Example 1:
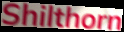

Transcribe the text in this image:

Shilthorn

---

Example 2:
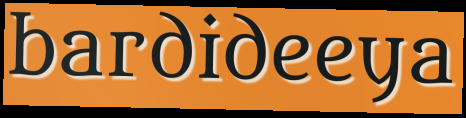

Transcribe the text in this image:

bardideeya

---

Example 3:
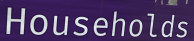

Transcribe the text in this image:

Households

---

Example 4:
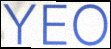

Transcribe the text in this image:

YEO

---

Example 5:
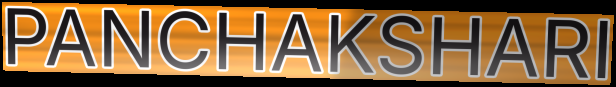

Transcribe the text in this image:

PANCHAKSHARI